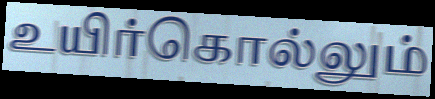
உயிர்கொல்லும்